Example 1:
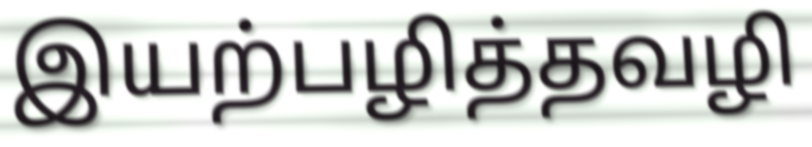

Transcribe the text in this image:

இயற்பழித்தவழி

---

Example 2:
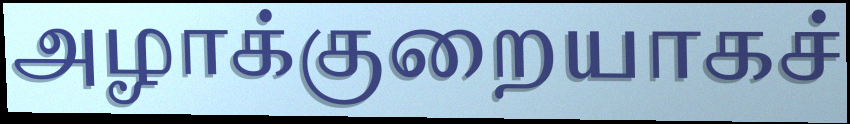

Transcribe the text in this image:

அழாக்குறையாகச்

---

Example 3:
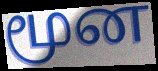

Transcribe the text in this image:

மூன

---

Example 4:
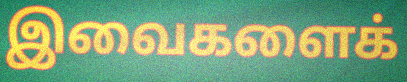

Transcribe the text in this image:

இவைகளைக்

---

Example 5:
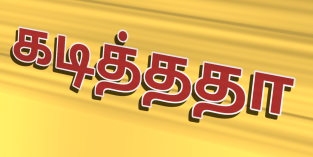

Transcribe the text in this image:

கடித்ததா